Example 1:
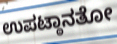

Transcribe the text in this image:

ಉಪಟ್ಠಾನತೋ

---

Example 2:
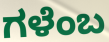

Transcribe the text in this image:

ಗಳೆಂಬ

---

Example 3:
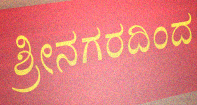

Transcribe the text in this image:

ಶ್ರೀನಗರದಿಂದ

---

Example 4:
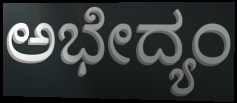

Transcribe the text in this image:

ಅಭೇದ್ಯಂ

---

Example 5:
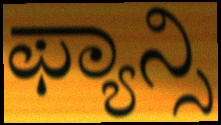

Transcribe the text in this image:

ಫ್ಯಾನ್ಸಿ